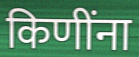
किणींना